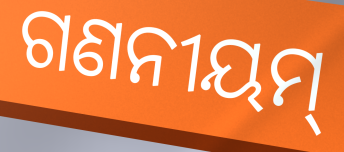
ଗଣନୀୟମ୍